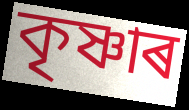
কৃষ্ণাৰ